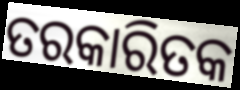
ତରକାରିତକ